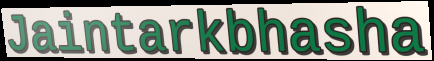
Jaintarkbhasha